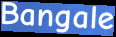
Bangale